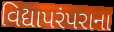
વિદ્યાપરંપરાના